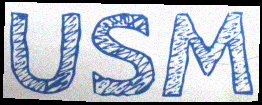
USM